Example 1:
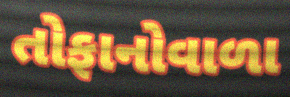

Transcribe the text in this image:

તોફાનોવાળા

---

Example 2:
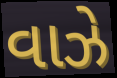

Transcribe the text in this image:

વાઝે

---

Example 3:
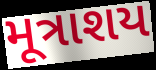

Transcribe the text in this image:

મૂત્રાશય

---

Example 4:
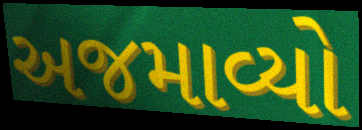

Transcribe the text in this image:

અજમાવ્યો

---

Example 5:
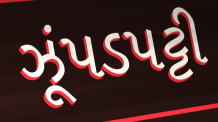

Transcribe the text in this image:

ઝૂંપડપટ્ટી